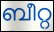
ബീറ്റ